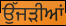
ਉੱਜੜੀਆਂ